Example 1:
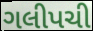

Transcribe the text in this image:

ગલીપચી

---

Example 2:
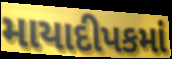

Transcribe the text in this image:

માયાદીપકમાં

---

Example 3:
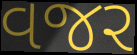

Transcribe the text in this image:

વજર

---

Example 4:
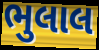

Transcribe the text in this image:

ભુલાલ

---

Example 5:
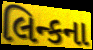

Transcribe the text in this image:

લિન્કના